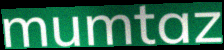
mumtaz